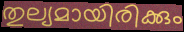
തുല്യമായിരിക്കും